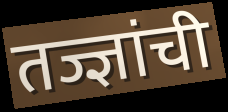
तज्ज्ञांची